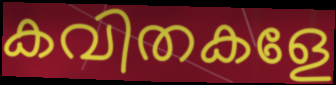
കവിതകളേ